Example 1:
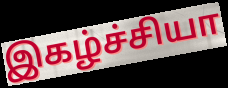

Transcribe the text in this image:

இகழ்ச்சியா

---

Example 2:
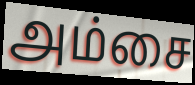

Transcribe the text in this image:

அம்சை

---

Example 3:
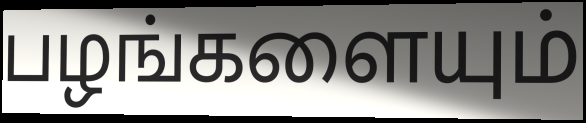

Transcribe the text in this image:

பழங்களையும்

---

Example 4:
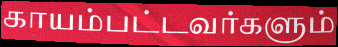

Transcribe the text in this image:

காயம்பட்டவர்களும்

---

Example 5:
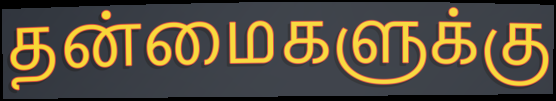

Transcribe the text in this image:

தன்மைகளுக்கு